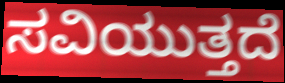
ಸವಿಯುತ್ತದೆ